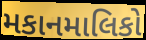
મકાનમાલિકો